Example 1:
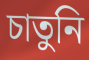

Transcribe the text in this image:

চাতুনি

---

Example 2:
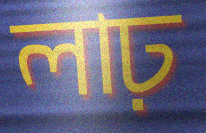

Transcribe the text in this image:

লাঢ়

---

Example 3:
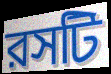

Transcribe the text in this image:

রসটি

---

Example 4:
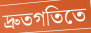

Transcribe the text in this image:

দ্রুতগতিতে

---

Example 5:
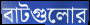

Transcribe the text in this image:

বাটগুলোর